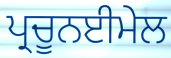
ਪ੍ਰਚੂਨਈਮੇਲ